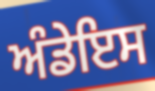
ਅੰਡੇਇਸ